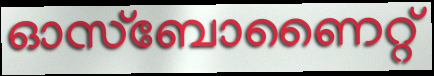
ഓസ്ബോണൈറ്റ്